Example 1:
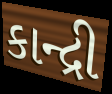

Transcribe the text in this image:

કાન્દ્રી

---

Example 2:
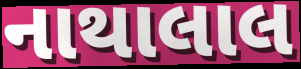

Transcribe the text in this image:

નાથાલાલ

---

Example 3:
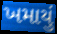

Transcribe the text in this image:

ખમાયું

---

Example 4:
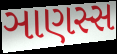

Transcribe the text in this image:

ઞાણસ્સ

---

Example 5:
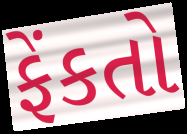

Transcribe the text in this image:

ફેંકતો